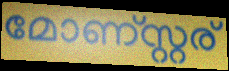
മോണ്സ്റ്റര്